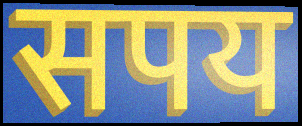
सपय